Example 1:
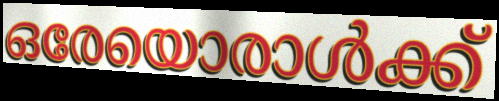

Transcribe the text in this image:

ഒരേയൊരാൾക്ക്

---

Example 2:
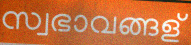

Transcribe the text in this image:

സ്വഭാവങ്ങള്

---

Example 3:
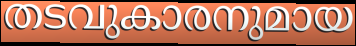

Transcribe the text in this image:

തടവുകാരനുമായ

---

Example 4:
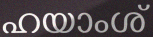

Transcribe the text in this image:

ഹയാംശ്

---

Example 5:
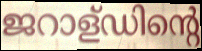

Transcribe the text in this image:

ജറാള്ഡിന്റെ